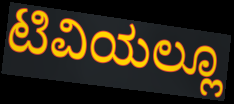
ಟಿವಿಯಲ್ಲೂ